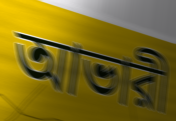
আভারী